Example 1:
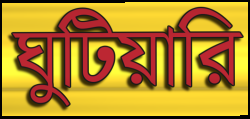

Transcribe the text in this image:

ঘুটিয়ারি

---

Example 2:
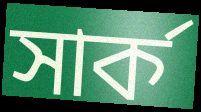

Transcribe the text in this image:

সার্ক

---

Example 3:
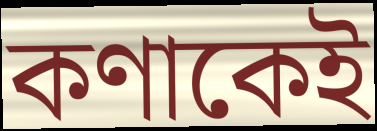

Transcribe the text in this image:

কণাকেই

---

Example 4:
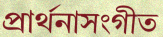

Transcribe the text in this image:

প্রার্থনাসংগীত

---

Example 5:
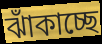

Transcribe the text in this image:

ঝাঁকাচ্ছে